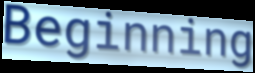
Beginning